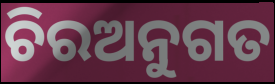
ଚିରଅନୁଗତ